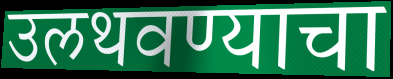
उलथवण्याचा